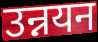
उन्नयन